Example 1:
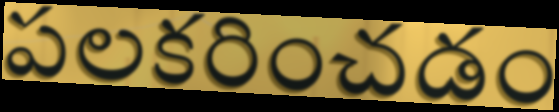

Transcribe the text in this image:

పలకరించడం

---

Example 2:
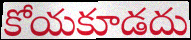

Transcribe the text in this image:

కోయకూడదు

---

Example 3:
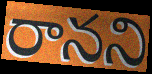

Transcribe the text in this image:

రానని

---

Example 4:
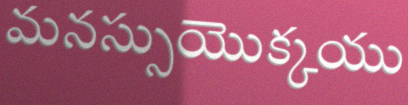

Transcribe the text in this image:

మనస్సుయొక్కయు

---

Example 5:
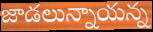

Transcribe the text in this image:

జాడలున్నాయన్న